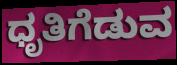
ಧೃತಿಗೆಡುವ